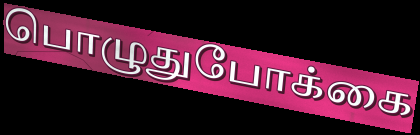
பொழுதுபோக்கை